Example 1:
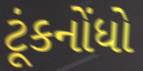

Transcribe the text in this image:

ટૂંકનોંધો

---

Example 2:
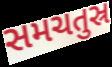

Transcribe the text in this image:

સમચતુસ્ર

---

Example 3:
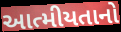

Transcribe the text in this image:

આત્મીયતાનો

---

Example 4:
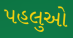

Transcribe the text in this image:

પહલુઓ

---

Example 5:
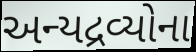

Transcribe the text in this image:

અન્યદ્રવ્યોના